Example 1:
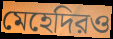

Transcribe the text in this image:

মেহেদিরও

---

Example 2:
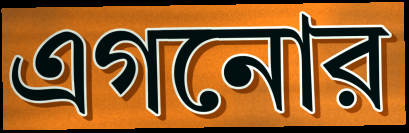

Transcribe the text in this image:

এগনোর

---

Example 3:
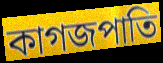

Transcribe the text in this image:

কাগজপাতি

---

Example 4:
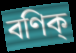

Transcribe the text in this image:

বণিক্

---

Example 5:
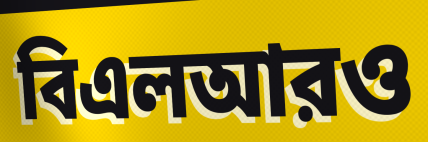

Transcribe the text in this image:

বিএলআরও